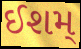
ઈશમ્